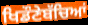
ਖਿਡੌਣੇਬੱਚਿਆਂ